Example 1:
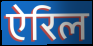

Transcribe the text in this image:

ऐरिल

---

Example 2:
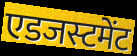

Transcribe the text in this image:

एडजस्‍टमेंट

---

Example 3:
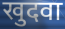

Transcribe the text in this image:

खुदवा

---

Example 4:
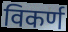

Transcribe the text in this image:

विकर्ण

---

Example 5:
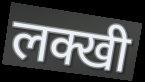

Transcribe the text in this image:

लक्खी